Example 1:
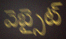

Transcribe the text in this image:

వెబ్సైట్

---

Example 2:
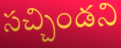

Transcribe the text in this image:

సచ్చిండని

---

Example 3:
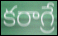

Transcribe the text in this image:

కరాగ్రే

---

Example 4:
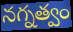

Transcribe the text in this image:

నగ్నత్వం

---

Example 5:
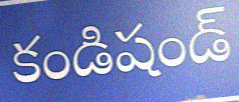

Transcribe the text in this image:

కండిషండ్